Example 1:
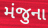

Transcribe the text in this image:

મંજુના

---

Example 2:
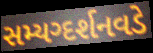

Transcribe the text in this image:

સમ્યગ્દર્શનવડે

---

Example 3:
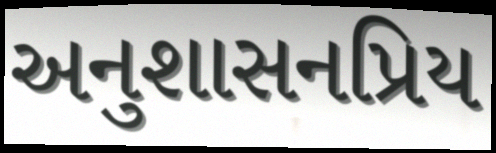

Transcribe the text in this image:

અનુશાસનપ્રિય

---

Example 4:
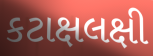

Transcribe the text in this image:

કટાક્ષલક્ષી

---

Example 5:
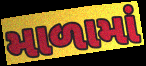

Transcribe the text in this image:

માળામાં